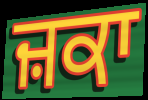
ਜ਼ਕਾ